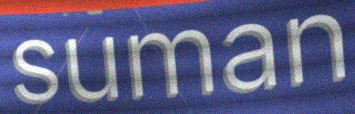
suman